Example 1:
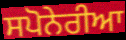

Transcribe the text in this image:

ਸਪੋਨੇਰੀਆ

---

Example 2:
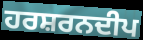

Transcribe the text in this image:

ਹਰਸ਼ਰਨਦੀਪ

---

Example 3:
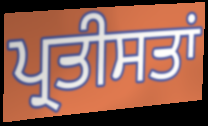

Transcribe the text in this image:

ਪ੍ਰਤੀਸਤਾਂ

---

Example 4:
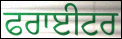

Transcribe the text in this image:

ਫਰਾਈਟਰ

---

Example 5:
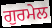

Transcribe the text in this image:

ਗੁਰਮੇਲ